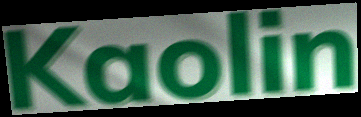
Kaolin